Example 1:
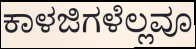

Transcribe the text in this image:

ಕಾಳಜಿಗಳೆಲ್ಲವೂ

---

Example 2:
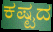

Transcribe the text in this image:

ಕಷ್ಟದ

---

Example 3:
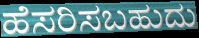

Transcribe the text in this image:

ಹೆಸರಿಸಬಹುದು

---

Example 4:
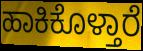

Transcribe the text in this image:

ಹಾಕಿಕೊಳ್ತಾರೆ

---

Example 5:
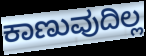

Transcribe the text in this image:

ಕಾಣುವುದಿಲ್ಲ